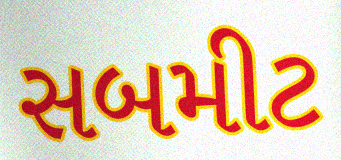
સબમીટ